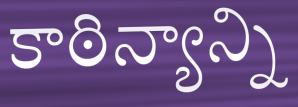
కాఠిన్యాన్ని